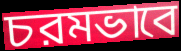
চরমভাবে